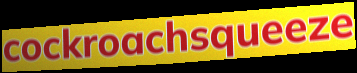
cockroachsqueeze